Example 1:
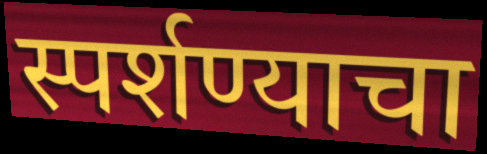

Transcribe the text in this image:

स्पर्शण्याचा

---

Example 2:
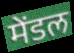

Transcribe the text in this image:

मेंडल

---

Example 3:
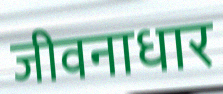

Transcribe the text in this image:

जीवनाधार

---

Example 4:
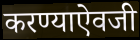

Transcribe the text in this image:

करण्याऐवजी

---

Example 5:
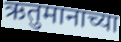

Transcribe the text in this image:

ऋतुमानाच्या